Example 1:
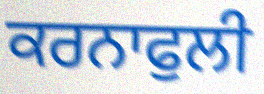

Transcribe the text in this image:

ਕਰਨਾਫੁਲੀ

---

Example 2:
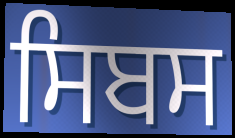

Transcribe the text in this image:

ਸਿਬਸ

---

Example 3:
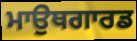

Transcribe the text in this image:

ਮਾਉਥਗਾਰਡ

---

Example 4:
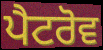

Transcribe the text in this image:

ਪੈਟਰੋਵ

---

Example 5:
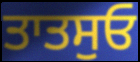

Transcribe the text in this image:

ਤਾਤਸੁਓ